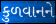
કુળવાનને